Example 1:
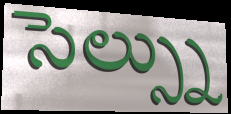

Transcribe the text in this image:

సెల్స్ను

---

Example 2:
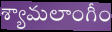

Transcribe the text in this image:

శ్యామలాంగీం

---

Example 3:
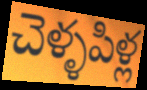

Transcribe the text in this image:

చెళ్ళపిళ్ల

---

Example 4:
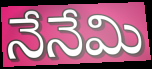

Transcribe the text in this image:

నేనేమి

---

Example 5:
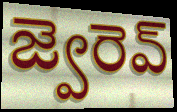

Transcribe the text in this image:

జ్వెరెవ్